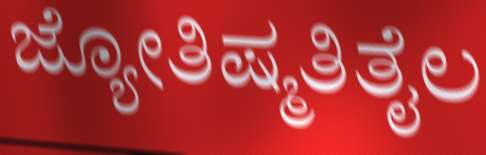
ಜ್ಯೋತಿಷ್ಮತಿತೈಲ